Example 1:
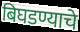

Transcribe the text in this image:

बिघडण्याचे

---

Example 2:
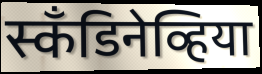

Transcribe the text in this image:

स्कँडिनेव्हिया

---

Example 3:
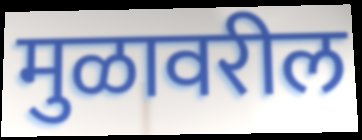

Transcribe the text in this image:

मुळावरील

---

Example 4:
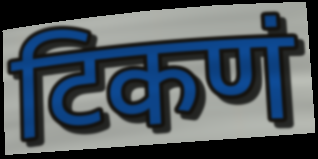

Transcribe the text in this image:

टिकणं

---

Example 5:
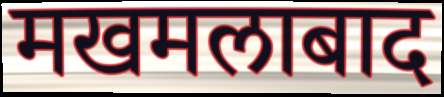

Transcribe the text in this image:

मखमलाबाद